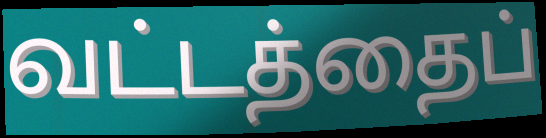
வட்டத்தைப்